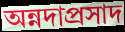
অন্নদাপ্রসাদ